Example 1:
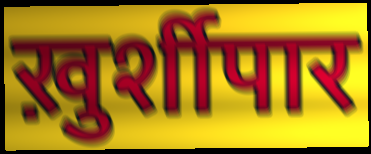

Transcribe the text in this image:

ख़ुर्शीपार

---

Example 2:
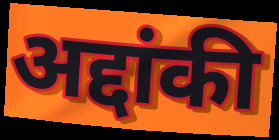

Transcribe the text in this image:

अद्दांकी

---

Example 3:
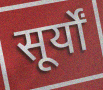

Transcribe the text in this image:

सूर्यों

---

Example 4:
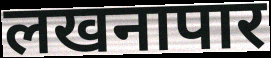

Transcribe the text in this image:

लखनापार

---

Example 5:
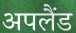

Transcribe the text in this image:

अपलैंड